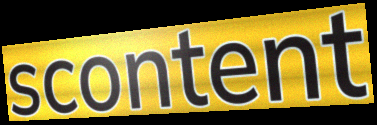
scontent